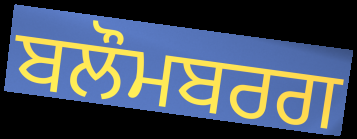
ਬਲੌਮਬਰਗ